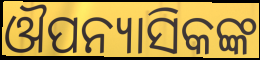
ଔପନ୍ୟାସିକଙ୍କ